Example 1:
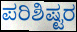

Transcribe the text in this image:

ಪರಿಶಿಷ್ಟರ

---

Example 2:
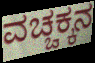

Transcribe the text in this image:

ವಚ್ಚಕ್ಕನ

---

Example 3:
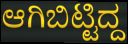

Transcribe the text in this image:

ಆಗಿಬಿಟ್ಟಿದ್ದ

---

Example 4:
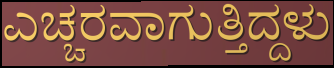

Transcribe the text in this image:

ಎಚ್ಚರವಾಗುತ್ತಿದ್ದಳು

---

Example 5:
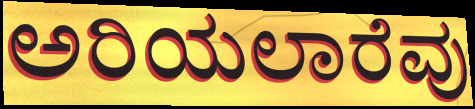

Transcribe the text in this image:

ಅರಿಯಲಾರೆವು